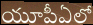
యూపీఏలో